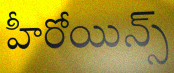
హీరోయిన్స్